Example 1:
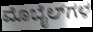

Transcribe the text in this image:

ಮೊಬೈಲ್‌ಗಳ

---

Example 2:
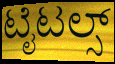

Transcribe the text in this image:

ಟೈಟಲ್ಸ್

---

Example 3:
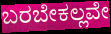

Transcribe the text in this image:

ಬರಬೇಕಲ್ಲವೇ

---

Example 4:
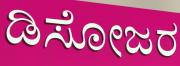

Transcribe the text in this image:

ಡಿಸೋಜರ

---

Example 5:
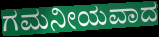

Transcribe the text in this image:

ಗಮನೀಯವಾದ